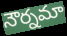
నౌర్నమా